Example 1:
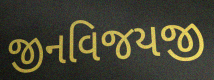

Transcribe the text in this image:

જીનવિજયજી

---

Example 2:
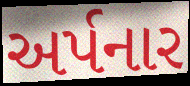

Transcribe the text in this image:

અર્પનાર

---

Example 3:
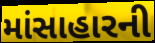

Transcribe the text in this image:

માંસાહારની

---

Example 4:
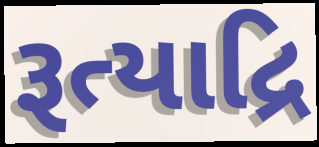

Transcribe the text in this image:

રૂત્યાદ્રિ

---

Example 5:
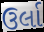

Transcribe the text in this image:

ઉર્લા